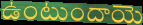
ఉంటుందాయె